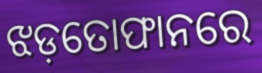
ଝଡ଼ତୋଫାନରେ